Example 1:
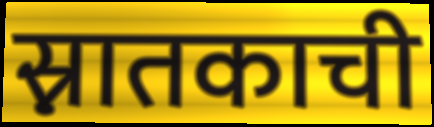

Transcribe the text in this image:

स्नातकाची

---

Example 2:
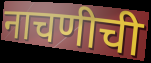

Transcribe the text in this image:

नाचणीची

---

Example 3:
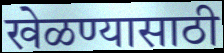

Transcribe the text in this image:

खेळण्यासाठी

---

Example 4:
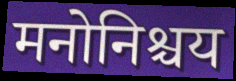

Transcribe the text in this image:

मनोनिश्चय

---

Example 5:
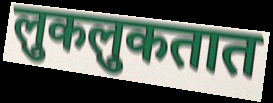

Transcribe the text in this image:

लुकलुकतात